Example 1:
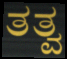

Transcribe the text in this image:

ತತ್ವ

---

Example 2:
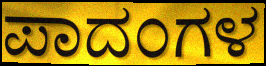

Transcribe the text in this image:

ಪಾದಂಗಳ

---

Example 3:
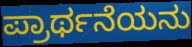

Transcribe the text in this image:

ಪ್ರಾರ್ಥನೆಯನು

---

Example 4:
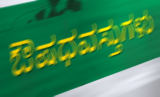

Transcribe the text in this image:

ಔಷಧವಸ್ತುಗಳು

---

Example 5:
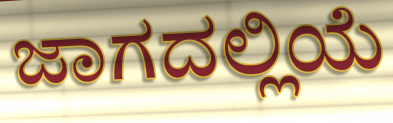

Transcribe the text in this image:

ಜಾಗದಲ್ಲಿಯೆ